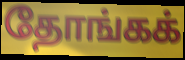
தோங்கக்